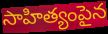
సాహిత్యంపైన